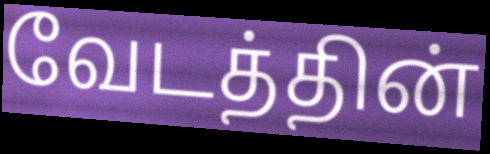
வேடத்தின்